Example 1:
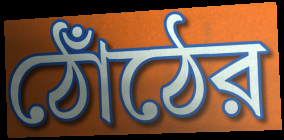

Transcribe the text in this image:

ঠোঁঠের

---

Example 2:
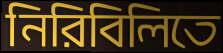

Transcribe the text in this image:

নিরিবিলিতে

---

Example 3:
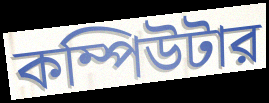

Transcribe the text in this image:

কম্পিউটার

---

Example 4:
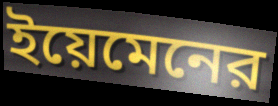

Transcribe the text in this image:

ইয়েমেনের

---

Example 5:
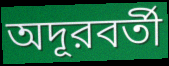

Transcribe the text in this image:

অদূরবর্তী